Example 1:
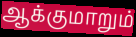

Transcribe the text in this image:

ஆக்குமாறும்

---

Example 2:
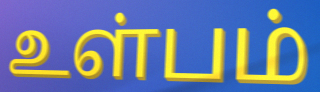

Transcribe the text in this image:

உள்பம்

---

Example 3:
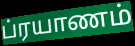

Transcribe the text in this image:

ப்ரயாணம்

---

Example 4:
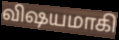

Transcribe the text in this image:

விஷயமாகி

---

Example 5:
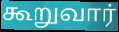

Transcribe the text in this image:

கூறுவார்